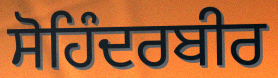
ਸੋਹਿੰਦਰਬੀਰ